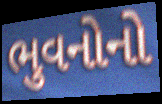
ભુવનોનો